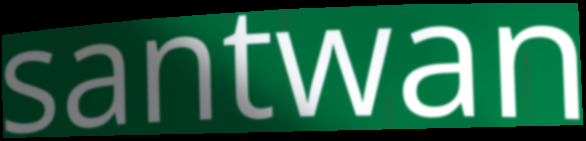
santwan